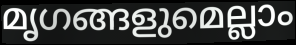
മൃഗങ്ങളുമെല്ലാം